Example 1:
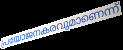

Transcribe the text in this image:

പ്രയോജനകരവുമാണെന്ന്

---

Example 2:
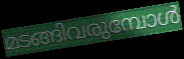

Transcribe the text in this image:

മടങ്ങിവരുമ്പോൾ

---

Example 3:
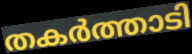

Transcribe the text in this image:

തകർത്താടി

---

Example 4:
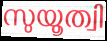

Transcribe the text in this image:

സുയൂത്വി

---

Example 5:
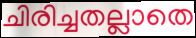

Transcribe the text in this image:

ചിരിച്ചതല്ലാതെ